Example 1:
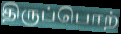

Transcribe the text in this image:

திருப்பொற்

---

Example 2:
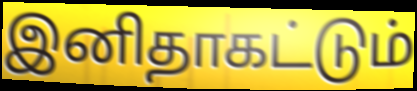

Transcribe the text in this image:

இனிதாகட்டும்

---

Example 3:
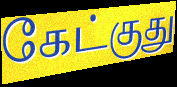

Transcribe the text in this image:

கேட்குது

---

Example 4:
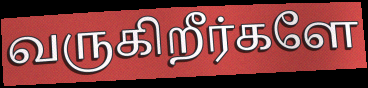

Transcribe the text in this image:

வருகிறீர்களே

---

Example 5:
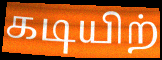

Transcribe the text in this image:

கடியிற்